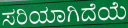
ಸರಿಯಾಗಿದೆಯೆ